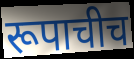
रूपाचीच